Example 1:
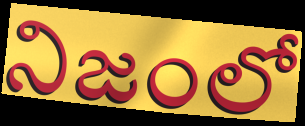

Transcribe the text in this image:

నిజంలో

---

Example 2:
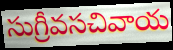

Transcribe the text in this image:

సుగ్రీవసచివాయ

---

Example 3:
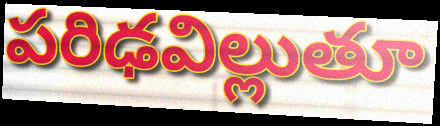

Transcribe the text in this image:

పరిఢవిల్లుతూ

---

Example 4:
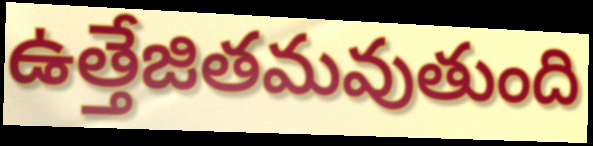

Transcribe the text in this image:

ఉత్తేజితమవుతుంది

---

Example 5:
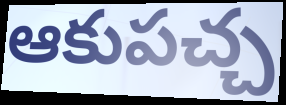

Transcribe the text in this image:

ఆకుపచ్చ